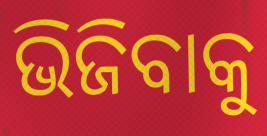
ଭିଜିବାକୁ